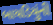
બાયડિયુંની